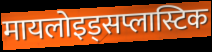
मायलोइड्सप्लास्टिक